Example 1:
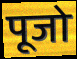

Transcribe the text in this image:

पूजो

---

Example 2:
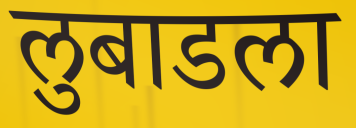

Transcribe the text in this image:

लुबाडला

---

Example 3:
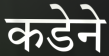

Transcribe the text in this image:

कडेने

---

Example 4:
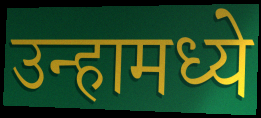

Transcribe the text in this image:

उन्हामध्ये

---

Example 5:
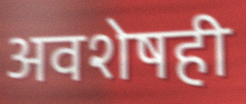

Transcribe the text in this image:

अवशेषही